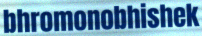
bhromonobhishek